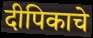
दीपिकाचे